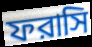
ফরাসি